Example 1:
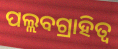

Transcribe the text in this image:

ପଲ୍ଲବଗ୍ରାହିତ୍ୱ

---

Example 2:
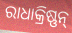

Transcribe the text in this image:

ରାଧାକ୍ରିଷ୍ଣନ୍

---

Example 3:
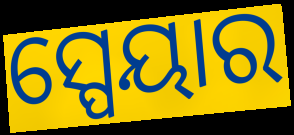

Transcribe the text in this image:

ସ୍ପେୟାର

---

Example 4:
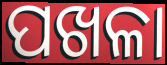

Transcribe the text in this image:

ପଖଳା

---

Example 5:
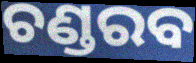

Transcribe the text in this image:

ଚଣ୍ଡରବ